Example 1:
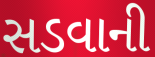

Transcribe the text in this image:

સડવાની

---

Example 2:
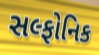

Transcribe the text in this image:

સલ્ફોનિક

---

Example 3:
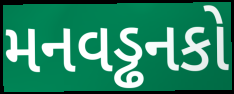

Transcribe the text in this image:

મનવડ્ઢનકો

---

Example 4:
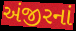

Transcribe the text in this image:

અંજીરનાં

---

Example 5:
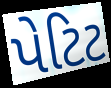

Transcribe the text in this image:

પેટિટ